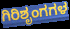
ಗಿರಿಶೃಂಗಗಳ